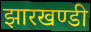
झारखण्डी